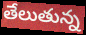
తేలుతున్న